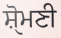
ਸ਼ੑੋਮਣੀ